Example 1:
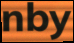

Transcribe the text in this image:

nby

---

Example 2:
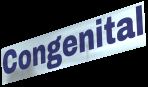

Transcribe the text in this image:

Congenital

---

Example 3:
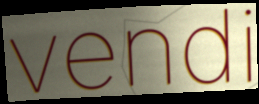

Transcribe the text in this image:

vendi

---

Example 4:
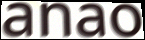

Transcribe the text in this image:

anao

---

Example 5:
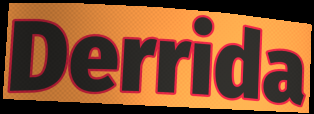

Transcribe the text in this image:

Derrida